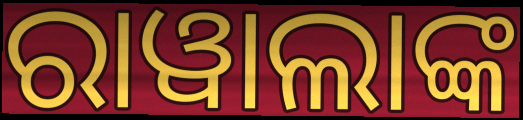
ରାୱାଲାଙ୍କ